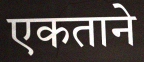
एकताने